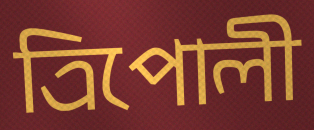
ত্রিপোলী